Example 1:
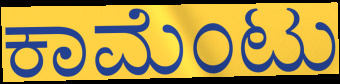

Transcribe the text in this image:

ಕಾಮೆಂಟು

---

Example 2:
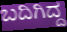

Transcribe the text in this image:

ಬದಿಗಿದ್ದ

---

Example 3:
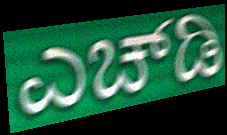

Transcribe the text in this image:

ಎಚ್‍ಡಿ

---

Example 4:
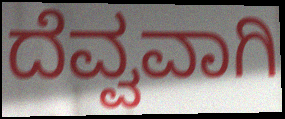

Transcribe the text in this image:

ದೆವ್ವವಾಗಿ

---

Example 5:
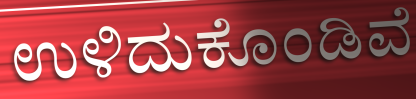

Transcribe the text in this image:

ಉಳಿದುಕೊಂಡಿವೆ